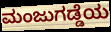
ಮಂಜುಗಡ್ಡೆಯ